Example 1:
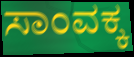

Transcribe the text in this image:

ಸಾಂವಕ್ಕ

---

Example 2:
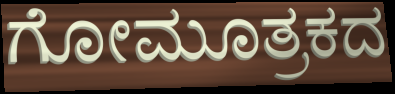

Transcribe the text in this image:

ಗೋಮೂತ್ರಕದ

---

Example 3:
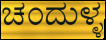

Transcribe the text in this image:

ಚಂದುಳ್ಳ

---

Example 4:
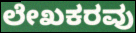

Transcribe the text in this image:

ಲೇಖಕರವು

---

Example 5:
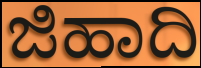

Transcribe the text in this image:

ಜಿಹಾದಿ